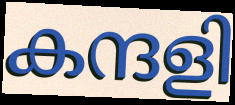
കന്ദളി